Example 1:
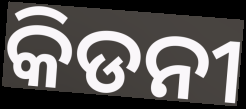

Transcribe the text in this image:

କିଡନୀ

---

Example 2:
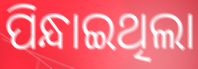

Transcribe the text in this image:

ପିନ୍ଧାଇଥିଲା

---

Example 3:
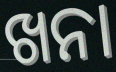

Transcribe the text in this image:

ଖନା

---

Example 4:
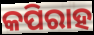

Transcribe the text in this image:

କପିରାହ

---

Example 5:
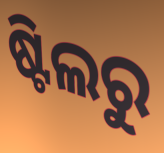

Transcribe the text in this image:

ଷ୍ଟିଲରୁ